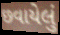
છવાયેલું